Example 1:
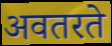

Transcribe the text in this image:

अवतरते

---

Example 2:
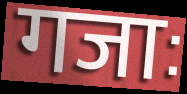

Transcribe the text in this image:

गजाः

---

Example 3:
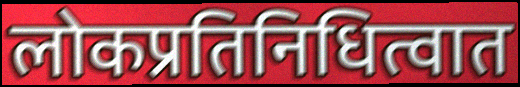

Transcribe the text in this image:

लोकप्रतिनिधित्वात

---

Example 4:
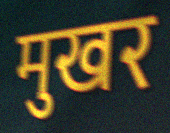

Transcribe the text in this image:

मुखर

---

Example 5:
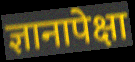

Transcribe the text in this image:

ज्ञानापेक्षा